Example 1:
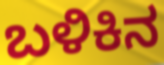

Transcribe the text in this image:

ಬಳಿಕಿನ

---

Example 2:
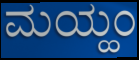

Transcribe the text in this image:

ಮಯ್ಹಂ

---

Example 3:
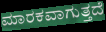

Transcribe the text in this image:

ಮಾರಕವಾಗುತ್ತದೆ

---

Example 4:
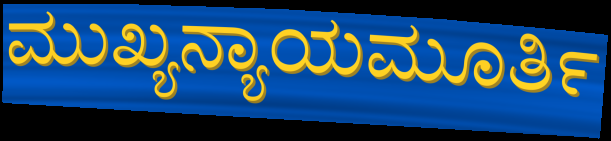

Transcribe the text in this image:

ಮುಖ್ಯನ್ಯಾಯಮೂರ್ತಿ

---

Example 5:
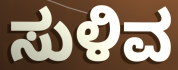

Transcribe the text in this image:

ಸುಳಿವ